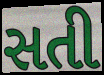
સતી